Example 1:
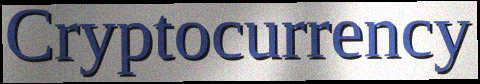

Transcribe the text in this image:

Cryptocurrency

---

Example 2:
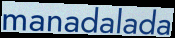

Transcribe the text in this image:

manadalada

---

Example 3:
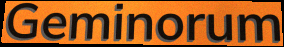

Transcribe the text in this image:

Geminorum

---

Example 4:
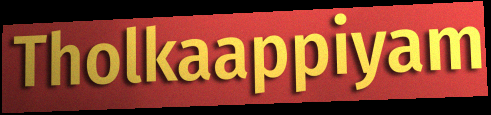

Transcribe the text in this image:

Tholkaappiyam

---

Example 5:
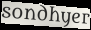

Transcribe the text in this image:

sondhyer